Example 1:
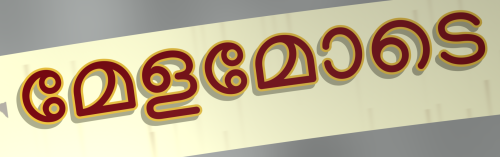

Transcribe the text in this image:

മേളമോടെ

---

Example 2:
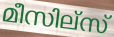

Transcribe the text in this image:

മീസില്സ്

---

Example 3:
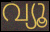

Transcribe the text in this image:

വ്യൂ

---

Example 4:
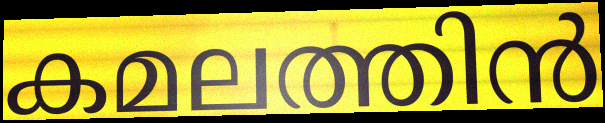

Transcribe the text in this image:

കമലത്തിൻ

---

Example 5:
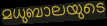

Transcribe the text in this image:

മധുബാലയുടെ